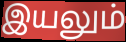
இயலும்